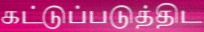
கட்டுப்படுத்திட